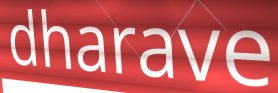
dharave